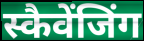
स्कैवेंजिंग